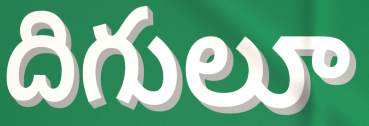
దిగులూ